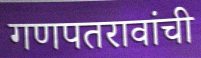
गणपतरावांची